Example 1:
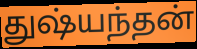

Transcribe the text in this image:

துஷ்யந்தன்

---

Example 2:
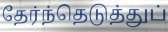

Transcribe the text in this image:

தேர்ந்தெடுத்துப்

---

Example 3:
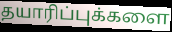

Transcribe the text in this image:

தயாரிப்புக்களை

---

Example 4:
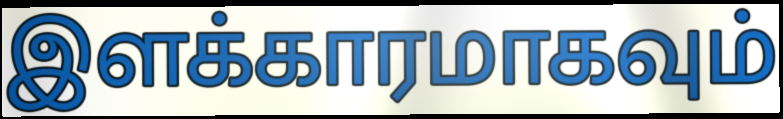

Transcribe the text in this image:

இளக்காரமாகவும்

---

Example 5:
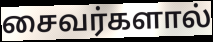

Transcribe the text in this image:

சைவர்களால்